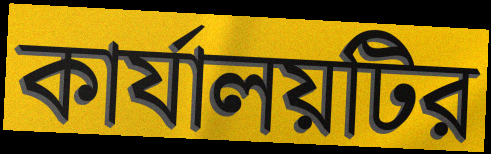
কার্যালয়টির